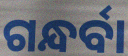
ଗନ୍ଧର୍ବା